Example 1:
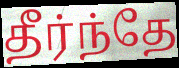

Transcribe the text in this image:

தீர்ந்தே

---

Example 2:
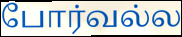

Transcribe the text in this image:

போர்வல்ல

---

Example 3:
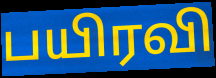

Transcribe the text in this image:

பயிரவி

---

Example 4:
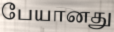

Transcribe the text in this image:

பேயானது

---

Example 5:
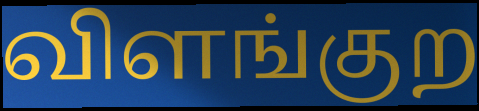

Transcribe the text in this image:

விளங்குற